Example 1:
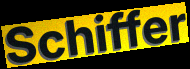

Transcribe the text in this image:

Schiffer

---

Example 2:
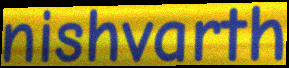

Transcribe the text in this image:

nishvarth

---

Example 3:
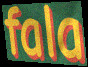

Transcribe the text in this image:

fala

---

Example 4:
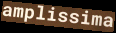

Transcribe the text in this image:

amplissima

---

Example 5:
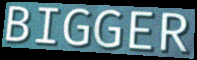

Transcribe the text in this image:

BIGGER